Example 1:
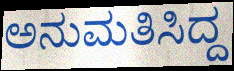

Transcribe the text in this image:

ಅನುಮತಿಸಿದ್ದ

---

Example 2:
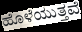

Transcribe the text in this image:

ಹೊಳೆಯುತ್ತವೆ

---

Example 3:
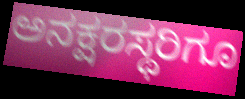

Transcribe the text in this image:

ಅನಕ್ಷರಸ್ಥರಿಗೂ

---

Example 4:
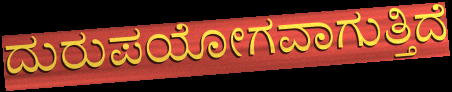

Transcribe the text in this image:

ದುರುಪಯೋಗವಾಗುತ್ತಿದೆ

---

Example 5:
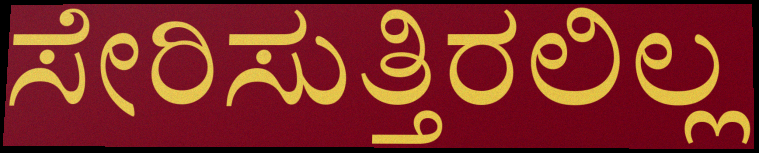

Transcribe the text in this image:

ಸೇರಿಸುತ್ತಿರಲಿಲ್ಲ